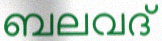
ബലവദ്